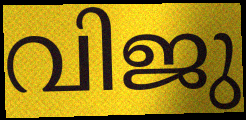
വിജു